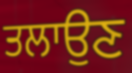
ਤਲਾਉਣ